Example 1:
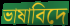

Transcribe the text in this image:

ভাষাবিদে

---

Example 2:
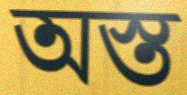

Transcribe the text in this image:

অস্ত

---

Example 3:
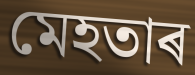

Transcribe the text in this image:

মেহতাৰ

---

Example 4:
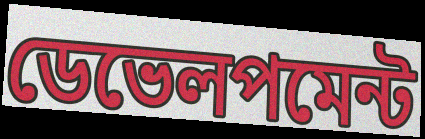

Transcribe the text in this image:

ডেভেলপমেন্ট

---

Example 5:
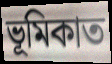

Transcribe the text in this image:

ভূমিকাত